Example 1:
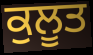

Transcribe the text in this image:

ਕੁਲੂਤ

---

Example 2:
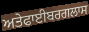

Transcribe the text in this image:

ਅਤੇਫਾਈਬਰਗਲਾਸ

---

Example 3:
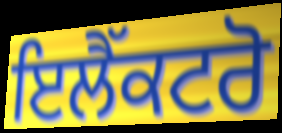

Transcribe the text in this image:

ਇਲੈੱਕਟਰੋ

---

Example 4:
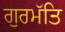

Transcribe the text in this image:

ਗੁਰਮੱਤਿ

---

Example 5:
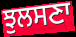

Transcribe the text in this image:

ਝੁਲਸਣਾ